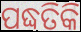
ପଦ୍ଧତିକି